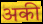
अकी